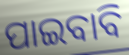
ପାଇବାବି